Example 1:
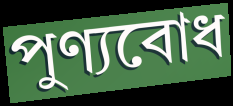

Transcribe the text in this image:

পুণ্যবোধ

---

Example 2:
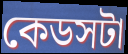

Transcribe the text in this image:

কেডসটা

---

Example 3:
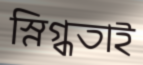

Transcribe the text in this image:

স্নিগ্ধতাই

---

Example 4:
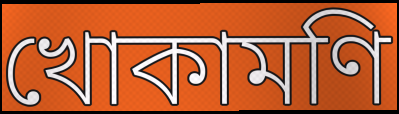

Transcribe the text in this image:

খোকামণি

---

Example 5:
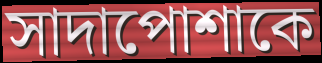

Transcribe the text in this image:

সাদাপোশাকে